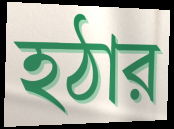
হঠার